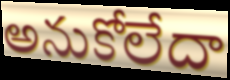
అనుకోలేదా